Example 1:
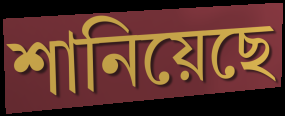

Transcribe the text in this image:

শানিয়েছে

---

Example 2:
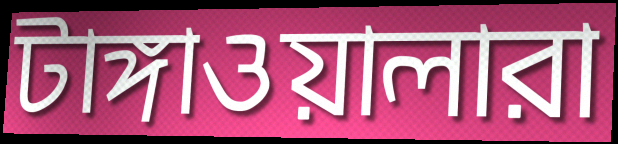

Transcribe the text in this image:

টাঙ্গাওয়ালারা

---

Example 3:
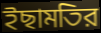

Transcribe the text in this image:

ইছামতির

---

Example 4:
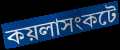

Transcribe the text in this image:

কয়লাসংকটে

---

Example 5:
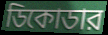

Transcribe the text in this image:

ডিকোডার